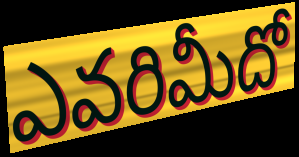
ఎవరిమీదో